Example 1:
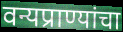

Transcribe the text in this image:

वन्यप्राण्यांचा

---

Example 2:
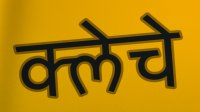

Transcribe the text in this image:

क्लेचे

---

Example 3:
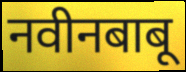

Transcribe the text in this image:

नवीनबाबू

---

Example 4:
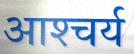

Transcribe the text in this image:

आश्‍चर्य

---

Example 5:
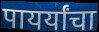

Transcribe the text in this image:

पायर्यांचा